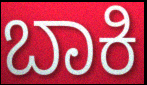
ಬಾಕಿ